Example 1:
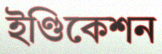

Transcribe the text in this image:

ইণ্ডিকেশন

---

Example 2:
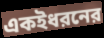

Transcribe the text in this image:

একইধরনের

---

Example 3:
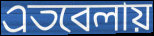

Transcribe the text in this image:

এতবেলায়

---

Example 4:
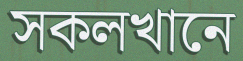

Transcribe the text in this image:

সকলখানে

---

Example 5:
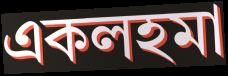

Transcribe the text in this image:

একলহমা